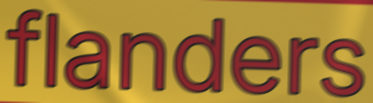
flanders